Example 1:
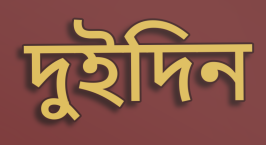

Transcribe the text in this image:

দুইদিন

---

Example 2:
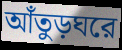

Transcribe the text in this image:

আঁতুড়ঘরে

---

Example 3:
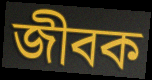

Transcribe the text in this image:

জীবক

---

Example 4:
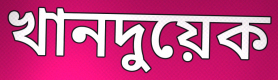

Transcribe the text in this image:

খানদুয়েক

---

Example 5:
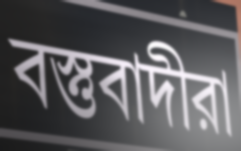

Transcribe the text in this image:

বস্তুবাদীরা